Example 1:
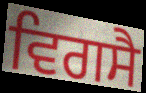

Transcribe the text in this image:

ਵਿਗਸੈ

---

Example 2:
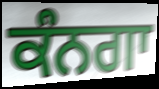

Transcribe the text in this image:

ਕੰਨਗਾ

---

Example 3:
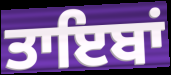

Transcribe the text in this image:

ਤਾਇਬਾਂ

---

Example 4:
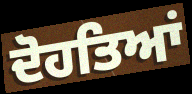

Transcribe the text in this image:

ਦੋਹਤਿਆਂ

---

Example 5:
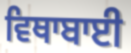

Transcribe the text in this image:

ਵਿਥਾਬਾਈ